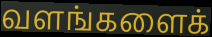
வளங்களைக்